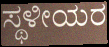
ಸ್ಥಳೀಯರ